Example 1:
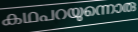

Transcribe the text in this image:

കഥപറയുന്നൊരു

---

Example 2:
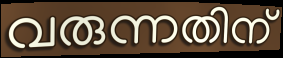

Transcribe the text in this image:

വരുന്നതിന്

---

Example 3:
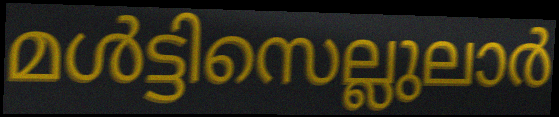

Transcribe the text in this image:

മൾട്ടിസെല്ലുലാർ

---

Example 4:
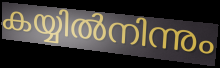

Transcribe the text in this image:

കയ്യിൽനിന്നും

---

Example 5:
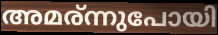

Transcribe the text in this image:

അമര്ന്നുപോയി